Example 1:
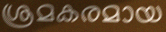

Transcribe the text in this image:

ശ്രമകരമായ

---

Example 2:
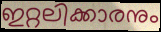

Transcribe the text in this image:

ഇറ്റലിക്കാരനും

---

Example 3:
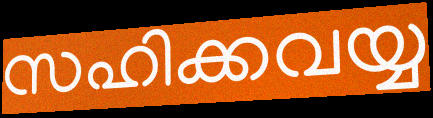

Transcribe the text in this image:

സഹിക്കവയ്യ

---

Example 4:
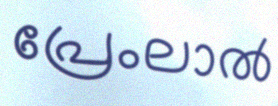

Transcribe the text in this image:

പ്രേംലാൽ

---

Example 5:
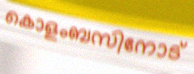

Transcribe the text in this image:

കൊളംബസിനോട്